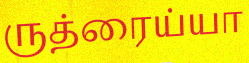
ருத்ரைய்யா